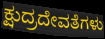
ಕ್ಷುದ್ರದೇವತೆಗಳು